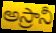
అస్రానీ